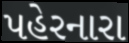
પહેરનારા